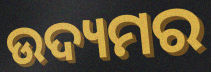
ଉଦ୍ୟମର